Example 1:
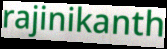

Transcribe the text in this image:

rajinikanth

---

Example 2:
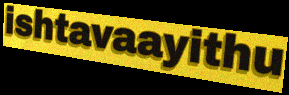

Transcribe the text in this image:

ishtavaayithu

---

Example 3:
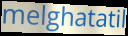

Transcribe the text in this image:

melghatatil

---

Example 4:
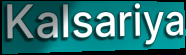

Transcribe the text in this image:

Kalsariya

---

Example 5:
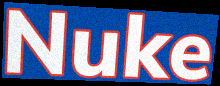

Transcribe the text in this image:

Nuke